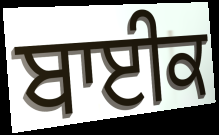
ਬਾਈਕ